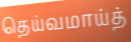
தெய்வமாய்த்